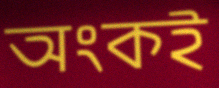
অংকই